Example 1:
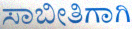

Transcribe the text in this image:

ಸಾಬೀತಿಗಾಗಿ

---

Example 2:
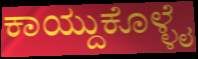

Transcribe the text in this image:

ಕಾಯ್ದುಕೊಳ್ಳೈ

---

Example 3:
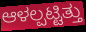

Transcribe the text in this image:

ಆಳಲ್ಪಟ್ಟಿತ್ತು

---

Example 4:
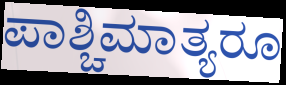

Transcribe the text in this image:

ಪಾಶ್ಚಿಮಾತ್ಯರೂ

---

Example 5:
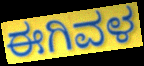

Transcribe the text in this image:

ಈಗಿವಳ